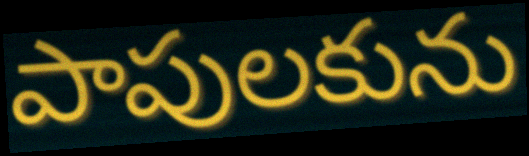
పాపులకును